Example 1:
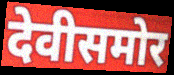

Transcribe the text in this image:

देवीसमोर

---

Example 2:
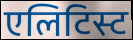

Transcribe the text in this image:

एलिटिस्ट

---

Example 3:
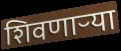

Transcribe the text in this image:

शिवणाऱ्या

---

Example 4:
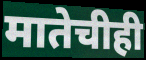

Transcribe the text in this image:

मातेचीही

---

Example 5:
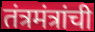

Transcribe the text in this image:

तंत्रमंत्रांची